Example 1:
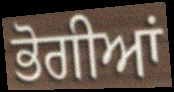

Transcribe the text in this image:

ਭੋਗੀਆਂ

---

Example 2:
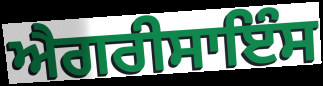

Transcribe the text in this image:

ਐਗਰੀਸਾਇੰਸ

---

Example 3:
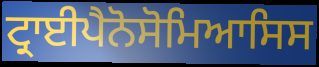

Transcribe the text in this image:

ਟ੍ਰਾਈਪੈਨੋਸੋਮਿਆਸਿਸ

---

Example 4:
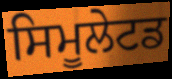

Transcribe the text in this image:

ਸਿਮੂਲੇਟਡ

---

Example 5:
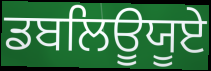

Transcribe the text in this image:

ਡਬਲਿਊਯੂਏ